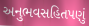
અનુભવસહિતપણું